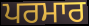
ਪਰਮਾਰ